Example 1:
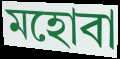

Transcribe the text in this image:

মহোবা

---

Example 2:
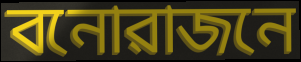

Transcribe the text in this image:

বনোৱাজনে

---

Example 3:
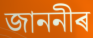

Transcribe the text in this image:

জাননীৰ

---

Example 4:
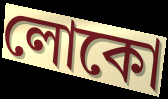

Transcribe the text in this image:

লোকো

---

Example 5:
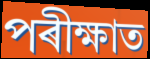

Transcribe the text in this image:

পৰীক্ষাত